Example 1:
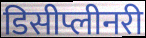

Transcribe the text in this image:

डिसीप्लीनरी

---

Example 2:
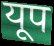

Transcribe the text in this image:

यूप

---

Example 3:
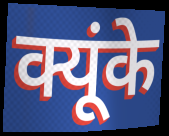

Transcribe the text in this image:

क्यूंके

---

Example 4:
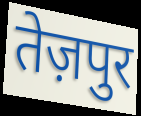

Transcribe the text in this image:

तेज़पुर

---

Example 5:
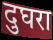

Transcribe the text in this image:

दुघरा